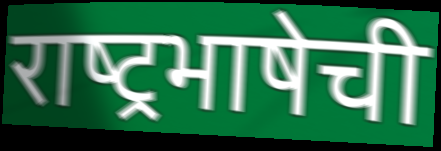
राष्ट्रभाषेची